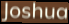
Joshua